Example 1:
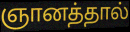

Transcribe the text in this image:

ஞானத்தால்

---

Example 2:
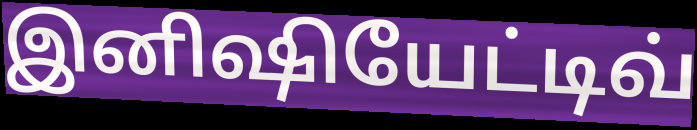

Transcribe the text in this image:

இனிஷியேட்டிவ்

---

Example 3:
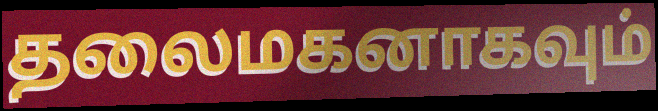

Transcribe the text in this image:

தலைமகனாகவும்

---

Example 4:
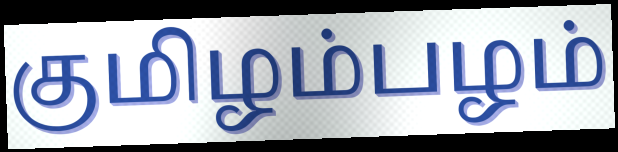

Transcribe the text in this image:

குமிழம்பழம்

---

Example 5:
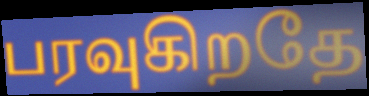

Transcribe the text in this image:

பரவுகிறதே